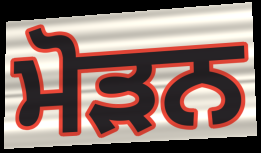
ਮੋੜਨ